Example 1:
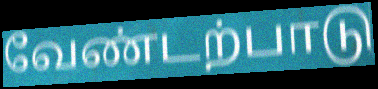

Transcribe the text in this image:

வேண்டற்பாடு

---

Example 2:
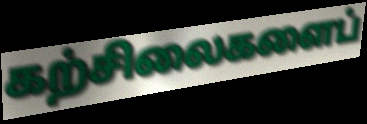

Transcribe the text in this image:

கற்சிலைகளைப்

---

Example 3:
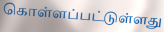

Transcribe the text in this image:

கொள்ளப்பட்டுள்ளது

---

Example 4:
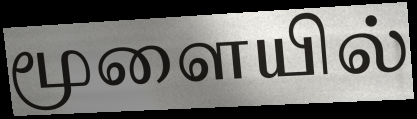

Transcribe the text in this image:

மூளையில்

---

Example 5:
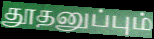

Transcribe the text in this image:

தூதனுப்பும்